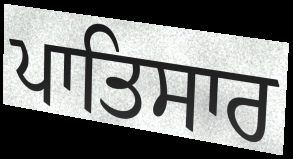
ਪਾਤਿਸਾਰ